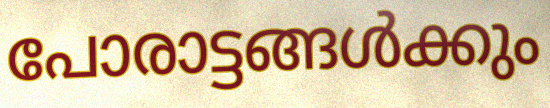
പോരാട്ടങ്ങൾക്കും